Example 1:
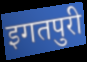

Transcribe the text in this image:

इगतपुरी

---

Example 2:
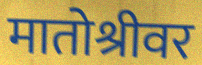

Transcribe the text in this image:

मातोश्रीवर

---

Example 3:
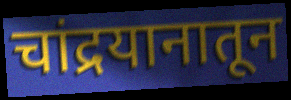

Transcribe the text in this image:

चांद्रयानातून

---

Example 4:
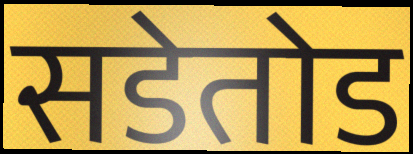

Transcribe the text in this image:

सडेतोड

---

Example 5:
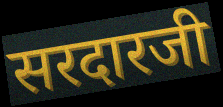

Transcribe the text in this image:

सरदारजी